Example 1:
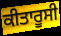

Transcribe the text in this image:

ਕੀਤਾਰੂਸੀ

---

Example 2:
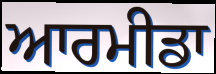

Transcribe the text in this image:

ਆਰਮੀਡਾ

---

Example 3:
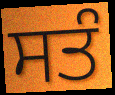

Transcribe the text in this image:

ਸਤੰ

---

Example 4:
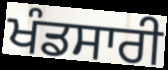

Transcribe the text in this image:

ਖੰਡਸਾਰੀ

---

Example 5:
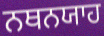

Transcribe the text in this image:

ਨਥਨਯਾਹ